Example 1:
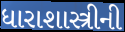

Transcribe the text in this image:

ધારાશાસ્ત્રીની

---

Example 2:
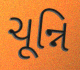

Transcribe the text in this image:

ચૂન્નિ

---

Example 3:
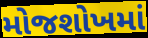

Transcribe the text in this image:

મોજશોખમાં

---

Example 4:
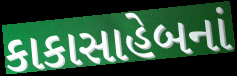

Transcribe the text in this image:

કાકાસાહેબનાં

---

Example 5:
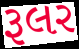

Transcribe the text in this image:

રૂલર